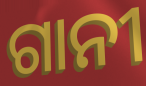
ଗାନୀ